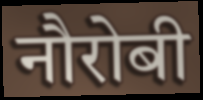
नौरोबी